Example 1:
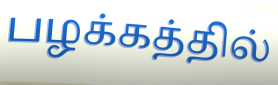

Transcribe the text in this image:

பழக்கத்தில்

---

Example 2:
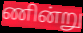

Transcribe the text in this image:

ணின்று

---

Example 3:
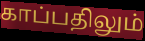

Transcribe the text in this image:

காப்பதிலும்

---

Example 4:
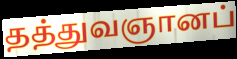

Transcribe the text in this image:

தத்துவஞானப்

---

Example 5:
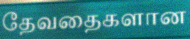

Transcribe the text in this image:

தேவதைகளான